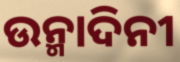
ଉନ୍ମାଦିନୀ